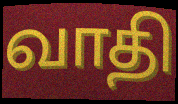
வாதி